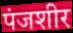
पंजशीर